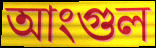
আংগুল